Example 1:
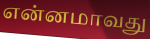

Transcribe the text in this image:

என்னமாவது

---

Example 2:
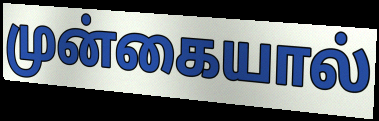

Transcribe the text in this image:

முன்கையால்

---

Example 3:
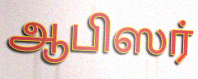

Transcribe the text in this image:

ஆபிஸர்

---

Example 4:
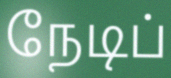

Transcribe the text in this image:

நேடிப்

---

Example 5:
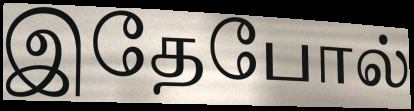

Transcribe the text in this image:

இதேபோல்